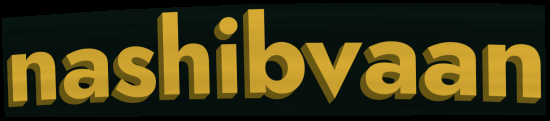
nashibvaan